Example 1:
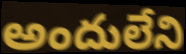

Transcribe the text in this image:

అందులేని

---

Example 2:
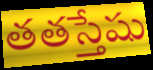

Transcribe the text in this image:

తతస్తేషు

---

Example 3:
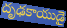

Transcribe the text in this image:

దృఢకాయుడై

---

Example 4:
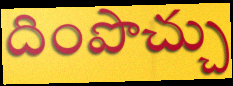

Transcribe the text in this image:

దింపొచ్చు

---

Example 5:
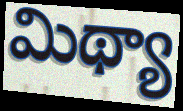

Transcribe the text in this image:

మిథ్యా